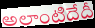
అలాంటిదేదీ